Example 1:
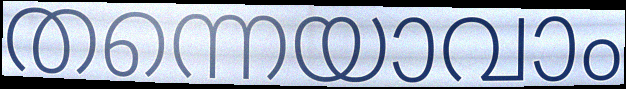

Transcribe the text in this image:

തന്നെയാവാം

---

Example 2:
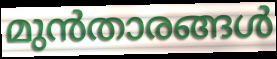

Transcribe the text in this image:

മുൻതാരങ്ങൾ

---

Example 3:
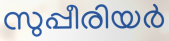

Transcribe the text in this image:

സുപ്പീരിയർ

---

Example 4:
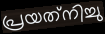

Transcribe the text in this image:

പ്രയത്‌നിച്ചു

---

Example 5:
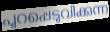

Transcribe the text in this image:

പുറപ്പെടുവിക്കുന്ന